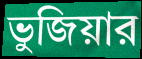
ভুজিয়ার